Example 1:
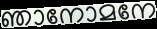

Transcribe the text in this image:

ഞാനോമനേ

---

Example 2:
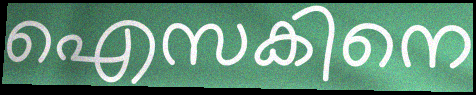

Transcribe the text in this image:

ഐസകിനെ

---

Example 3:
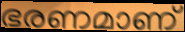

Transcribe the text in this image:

ഭരണമാണ്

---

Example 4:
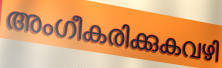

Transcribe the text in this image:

അംഗീകരിക്കുകവഴി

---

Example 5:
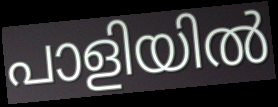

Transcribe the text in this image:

പാളിയിൽ